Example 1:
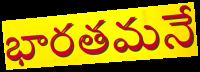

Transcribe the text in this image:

భారతమనే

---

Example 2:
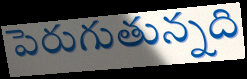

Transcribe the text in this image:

పెరుగుతున్నది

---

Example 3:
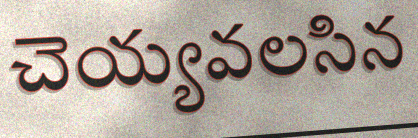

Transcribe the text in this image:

చెయ్యవలసిన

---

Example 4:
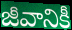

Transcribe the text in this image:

జీవానికీ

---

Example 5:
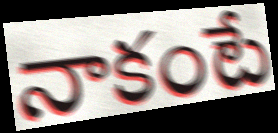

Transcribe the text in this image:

నాకంటే